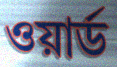
ওয়ার্ড